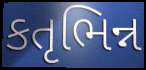
કતૃભિન્ન